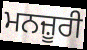
ਮਨਜ਼ੂਰੀ